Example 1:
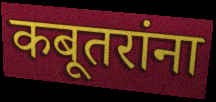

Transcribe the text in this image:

कबूतरांना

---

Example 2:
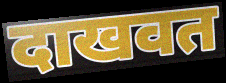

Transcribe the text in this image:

दाखवत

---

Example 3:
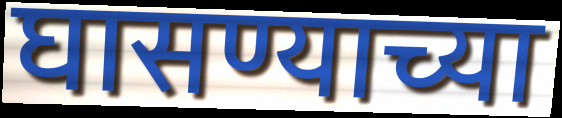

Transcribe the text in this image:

घासण्याच्या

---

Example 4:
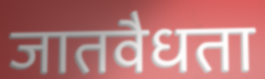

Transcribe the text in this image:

जातवैधता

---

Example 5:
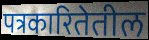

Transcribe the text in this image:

पत्रकारितेतील